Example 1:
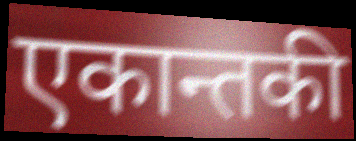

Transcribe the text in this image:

एकान्तकी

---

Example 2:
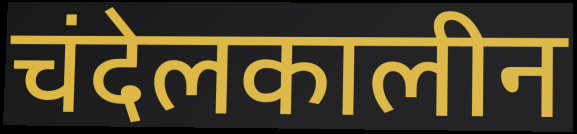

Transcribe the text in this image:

चंदेलकालीन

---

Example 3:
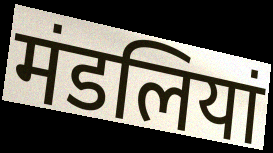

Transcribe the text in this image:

मंडलियां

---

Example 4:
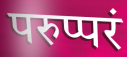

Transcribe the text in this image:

परुप्परं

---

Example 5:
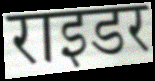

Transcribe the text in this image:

राइडर